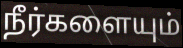
நீர்களையும்